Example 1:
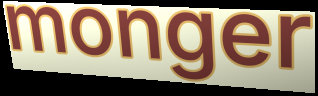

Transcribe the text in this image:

monger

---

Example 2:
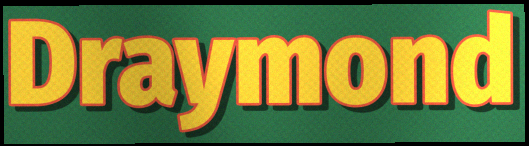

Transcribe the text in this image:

Draymond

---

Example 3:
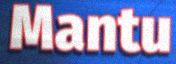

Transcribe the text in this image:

Mantu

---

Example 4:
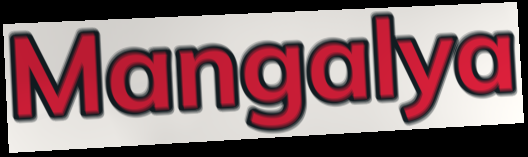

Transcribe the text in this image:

Mangalya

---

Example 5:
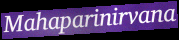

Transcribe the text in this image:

Mahaparinirvana